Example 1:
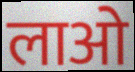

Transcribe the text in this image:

लाओ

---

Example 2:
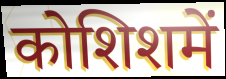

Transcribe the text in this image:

कोशिशमें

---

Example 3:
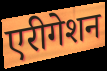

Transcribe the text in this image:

एरीगेशन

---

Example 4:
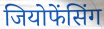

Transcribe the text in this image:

जियोफेंसिंग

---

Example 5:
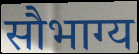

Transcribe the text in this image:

सौभाग्य